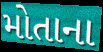
મોતાના